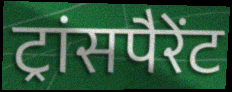
ट्रांसपैरेंट